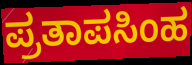
ಪ್ರತಾಪಸಿಂಹ